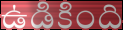
ఉడికింది